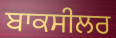
ਬਾਕਸੀਲਰ